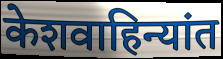
केशवाहिन्यांत